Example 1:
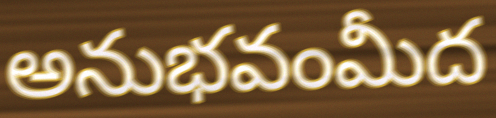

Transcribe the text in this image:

అనుభవంమీద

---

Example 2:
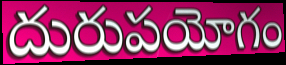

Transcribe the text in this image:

దురుపయోగం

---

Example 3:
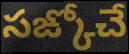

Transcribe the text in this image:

సఙ్కోచే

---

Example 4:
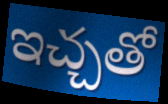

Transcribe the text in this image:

ఇచ్చతో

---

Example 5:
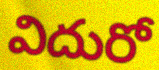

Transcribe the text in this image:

విదురో